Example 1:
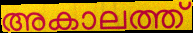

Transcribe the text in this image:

അകാലത്ത്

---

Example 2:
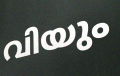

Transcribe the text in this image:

വിയും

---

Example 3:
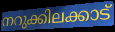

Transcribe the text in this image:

നറുക്കിലക്കാട്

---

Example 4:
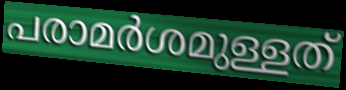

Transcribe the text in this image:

പരാമർശമുള്ളത്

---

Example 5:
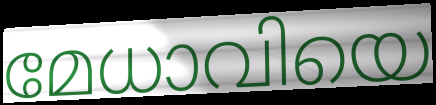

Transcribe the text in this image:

മേധാവിയെ